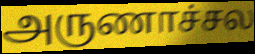
அருணாச்சல